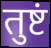
तुष्टं